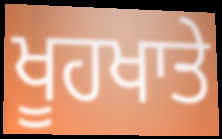
ਖੂਹਖਾਤੇ